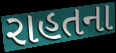
રાહતના